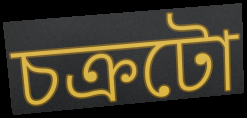
চক্ৰটো